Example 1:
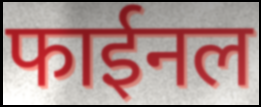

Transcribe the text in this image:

फाईनल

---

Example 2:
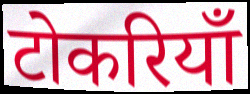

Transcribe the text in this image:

टोकरियाँ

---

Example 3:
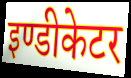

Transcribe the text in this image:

इण्डीकेटर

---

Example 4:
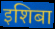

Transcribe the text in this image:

इशिबा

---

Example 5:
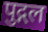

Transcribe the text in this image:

पुद्गल